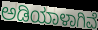
ಅಡಿಯಾಳಾಗಿವೆ